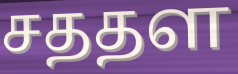
சததள